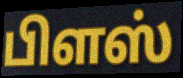
பிளஸ்